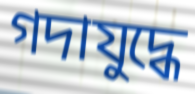
গদাযুদ্ধে